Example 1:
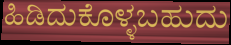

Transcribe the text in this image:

ಹಿಡಿದುಕೊಳ್ಳಬಹುದು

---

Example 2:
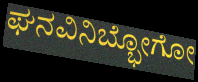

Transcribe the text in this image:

ಘನವಿನಿಬ್ಭೋಗೋ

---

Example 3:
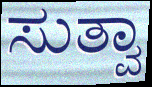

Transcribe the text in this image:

ಸುತ್ವಾ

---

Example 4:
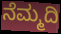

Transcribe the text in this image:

ನೆಮ್ಮದಿ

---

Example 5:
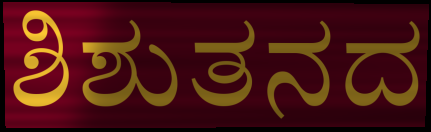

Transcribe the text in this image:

ಶಿಶುತನದ